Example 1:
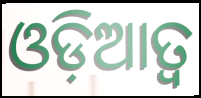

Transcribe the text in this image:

ଓଡ଼ିଆତ୍ୱ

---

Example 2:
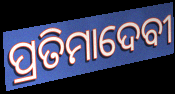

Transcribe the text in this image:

ପ୍ରତିମାଦେବୀ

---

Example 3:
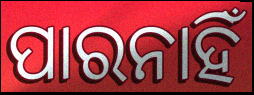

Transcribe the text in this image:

ପାରନାହିଁ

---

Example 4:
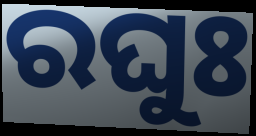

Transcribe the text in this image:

ରଘୁଃ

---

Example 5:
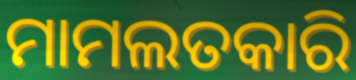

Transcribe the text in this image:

ମାମଲତକାରି